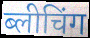
ब्लीचिंग